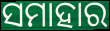
ସମାହାର